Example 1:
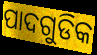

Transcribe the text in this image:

ପାଦଗୁଡିକ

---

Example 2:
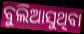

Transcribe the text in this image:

ବୁଲିଆସୁଥିବା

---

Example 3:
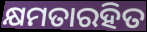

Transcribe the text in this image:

କ୍ଷମତାରହିତ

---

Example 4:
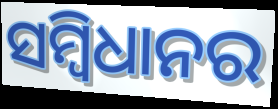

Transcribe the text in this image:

ସମ୍ବିଧାନର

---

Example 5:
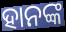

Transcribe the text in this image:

ହାନଙ୍କ